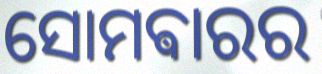
ସୋମଵାରର